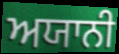
ਅਯਾਨੀ